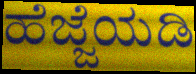
ಹೆಜ್ಜೆಯಡಿ